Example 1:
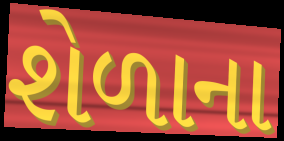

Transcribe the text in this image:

શેળાના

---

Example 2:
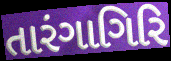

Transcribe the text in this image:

તારંગાગિરિ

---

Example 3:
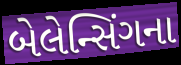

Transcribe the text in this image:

બેલેન્સિંગના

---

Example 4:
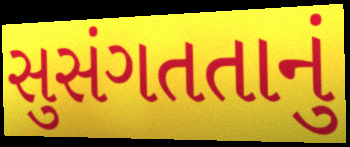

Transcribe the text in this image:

સુસંગતતાનું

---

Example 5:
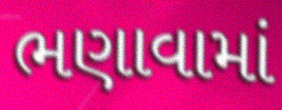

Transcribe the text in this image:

ભણાવામાં